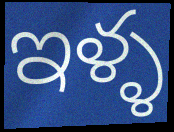
ఇళ్ళ